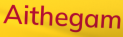
Aithegam